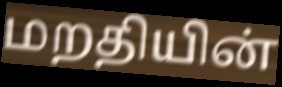
மறதியின்